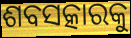
ଶବସତ୍କାରକୁ